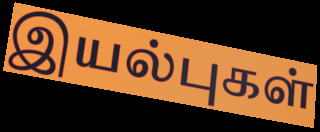
இயல்புகள்